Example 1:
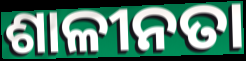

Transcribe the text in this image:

ଶାଳୀନତା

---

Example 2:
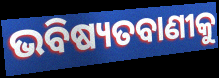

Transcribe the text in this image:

ଭବିଷ୍ୟତବାଣୀକୁ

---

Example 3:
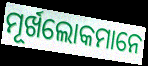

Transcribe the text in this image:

ମୂର୍ଖଲୋକମାନେ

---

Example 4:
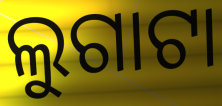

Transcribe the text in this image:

ଲୁଗାଟା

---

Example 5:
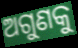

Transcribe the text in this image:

ଅଗୁଣକୁ